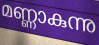
മണ്ണാകുന്നു